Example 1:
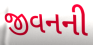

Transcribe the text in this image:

જીવનની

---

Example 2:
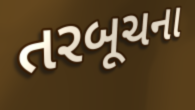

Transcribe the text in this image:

તરબૂચના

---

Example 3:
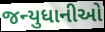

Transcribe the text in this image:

જન્યુધાનીઓ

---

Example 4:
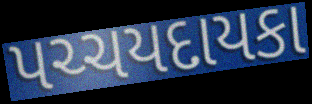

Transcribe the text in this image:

પચ્ચયદાયકા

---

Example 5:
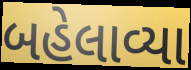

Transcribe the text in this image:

બહેલાવ્યા